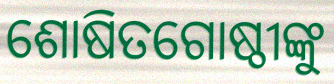
ଶୋଷିତଗୋଷ୍ଠୀଙ୍କୁ